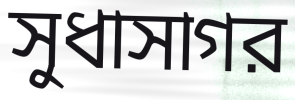
সুধাসাগর